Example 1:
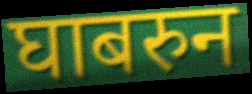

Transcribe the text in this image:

घाबरुन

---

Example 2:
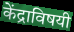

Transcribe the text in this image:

केंद्राविषयी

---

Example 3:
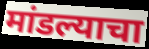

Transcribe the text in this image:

मांडल्याचा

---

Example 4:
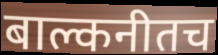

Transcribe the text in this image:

बाल्कनीतच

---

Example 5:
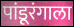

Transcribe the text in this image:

पांडूरंगाला